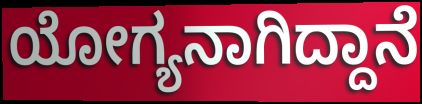
ಯೋಗ್ಯನಾಗಿದ್ದಾನೆ